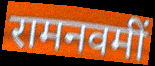
रामनवमीं